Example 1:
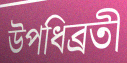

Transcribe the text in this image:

উপধিব্রতী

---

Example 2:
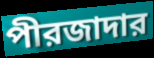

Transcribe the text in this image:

পীরজাদার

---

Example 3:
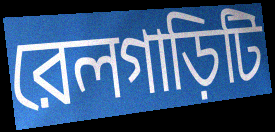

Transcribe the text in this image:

রেলগাড়িটি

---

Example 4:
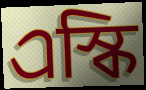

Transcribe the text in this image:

এস্কি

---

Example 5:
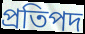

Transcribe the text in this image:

প্রতিপদ